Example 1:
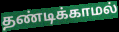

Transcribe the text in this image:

தண்டிக்காமல்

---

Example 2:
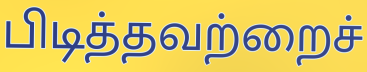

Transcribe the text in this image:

பிடித்தவற்றைச்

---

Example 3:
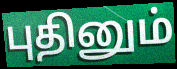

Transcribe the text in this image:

புதினும்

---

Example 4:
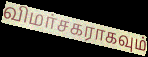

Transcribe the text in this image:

விமர்சகராகவும்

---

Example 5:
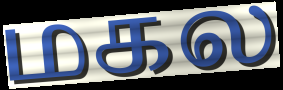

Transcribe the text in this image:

மகல